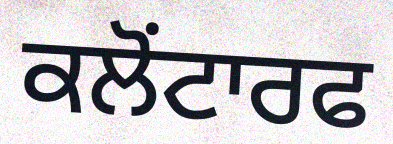
ਕਲੋਂਟਾਰਫ